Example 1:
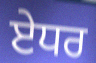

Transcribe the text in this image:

ਏਧਰ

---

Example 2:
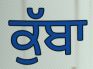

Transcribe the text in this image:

ਕੁੱਬਾ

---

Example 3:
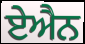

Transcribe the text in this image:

ਏਐਨ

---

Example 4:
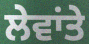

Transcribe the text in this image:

ਲੇਵਾਂਤੇ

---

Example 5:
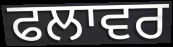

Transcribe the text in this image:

ਫਲਾਵਰ